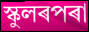
স্কুলৰপৰা